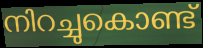
നിറച്ചുകൊണ്ട്